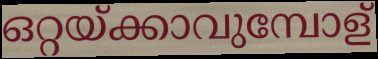
ഒറ്റയ്ക്കാവുമ്പോള്